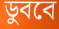
ডুববে